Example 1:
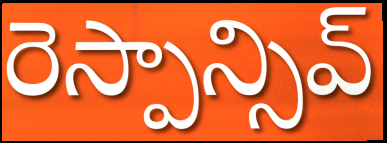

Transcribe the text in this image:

రెస్పాన్సివ్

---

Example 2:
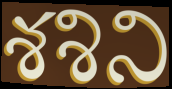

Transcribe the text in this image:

శశిని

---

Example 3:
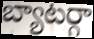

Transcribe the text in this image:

బ్యాటర్గా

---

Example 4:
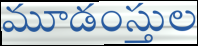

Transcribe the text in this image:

మూడంస్తుల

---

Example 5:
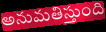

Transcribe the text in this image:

అనుమతిస్తుంది